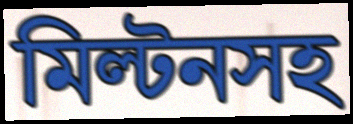
মিল্টনসহ